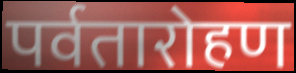
पर्वतारोहण